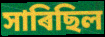
সাৰিছিল